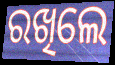
ରଖିଲେ